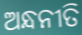
ଅନ୍ଧନୀତି